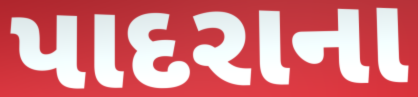
પાદરાના